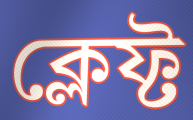
ক্লেফ্ট